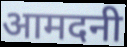
आमदनी